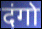
दंगो